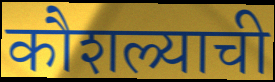
कौशल्याची